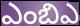
ఎంబిఎ